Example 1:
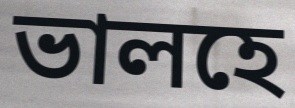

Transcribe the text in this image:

ভালহে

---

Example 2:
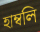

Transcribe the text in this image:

হাম্বলি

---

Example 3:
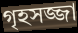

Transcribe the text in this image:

গৃহসজ্জা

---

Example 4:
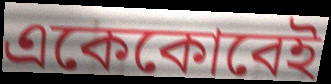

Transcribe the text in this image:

একেকোবেই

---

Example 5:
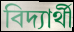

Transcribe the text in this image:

বিদ্যাৰ্থী